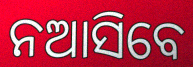
ନଆସିବେ